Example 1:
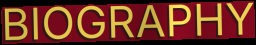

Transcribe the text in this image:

BIOGRAPHY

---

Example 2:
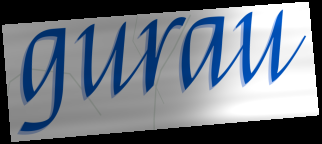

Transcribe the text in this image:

gurau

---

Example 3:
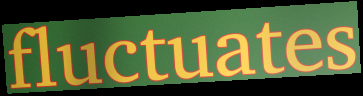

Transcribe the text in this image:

fluctuates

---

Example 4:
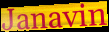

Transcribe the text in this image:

Janavin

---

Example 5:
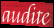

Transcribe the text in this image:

audite